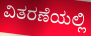
ವಿತರಣೆಯಲ್ಲಿ